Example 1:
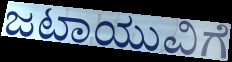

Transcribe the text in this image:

ಜಟಾಯುವಿಗೆ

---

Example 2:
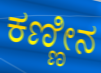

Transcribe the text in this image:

ಕಣ್ಣೀನ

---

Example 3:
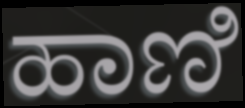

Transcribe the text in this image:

ಹಾಣಿ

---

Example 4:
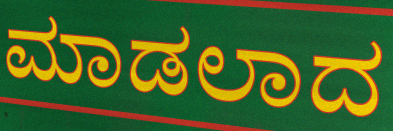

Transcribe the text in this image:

ಮಾಡಲಾದ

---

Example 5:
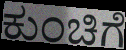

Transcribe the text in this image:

ಕುಂಚಿಗೆ